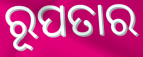
ରୂପତାର